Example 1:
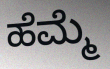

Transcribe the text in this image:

ಹೆಮ್ಮೆ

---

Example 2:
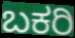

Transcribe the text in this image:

ಬಕರಿ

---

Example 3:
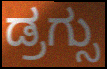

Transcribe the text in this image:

ಡ್ರಗ್ಸು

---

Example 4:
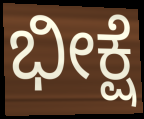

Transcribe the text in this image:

ಭೀಕ್ಷೆ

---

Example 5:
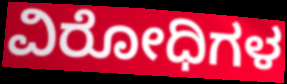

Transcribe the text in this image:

ವಿರೋಧಿಗಳ